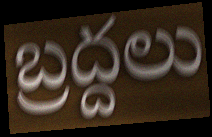
బ్రద్దలు